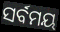
ସର୍ବମୟ